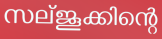
സല്ജൂക്കിന്റെ